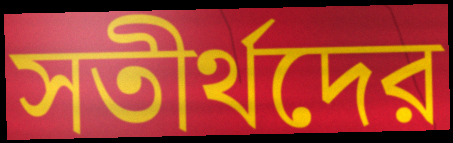
সতীর্থদের